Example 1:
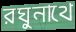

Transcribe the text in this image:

রঘুনাথে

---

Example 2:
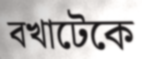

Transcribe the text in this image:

বখাটেকে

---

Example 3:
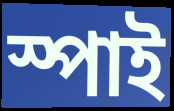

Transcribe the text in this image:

স্পাই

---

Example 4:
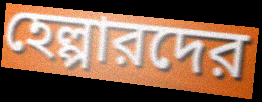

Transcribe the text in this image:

হেল্পারদের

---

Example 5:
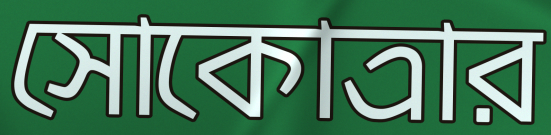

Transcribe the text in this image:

সোকোত্রার